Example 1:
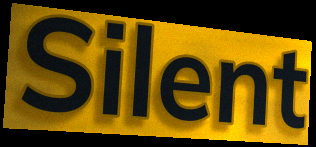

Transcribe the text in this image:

Silent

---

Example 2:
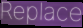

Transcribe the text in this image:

Replace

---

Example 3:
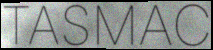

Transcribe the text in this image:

TASMAC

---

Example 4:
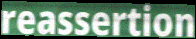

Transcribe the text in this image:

reassertion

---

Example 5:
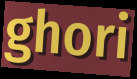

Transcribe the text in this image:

ghori